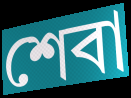
শেবা